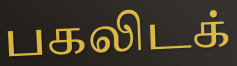
பகலிடக்